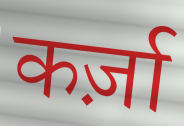
कर्ज़ा